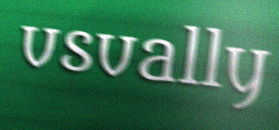
usually